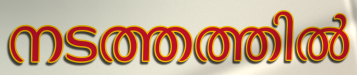
നടത്തത്തിൽ